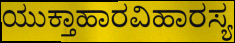
ಯುಕ್ತಾಹಾರವಿಹಾರಸ್ಯ